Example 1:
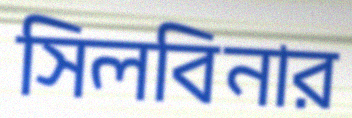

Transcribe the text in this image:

সিলবিনার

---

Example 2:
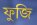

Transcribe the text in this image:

ফুজি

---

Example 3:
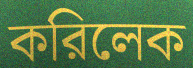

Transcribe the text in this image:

করিলেক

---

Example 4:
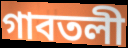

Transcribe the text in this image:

গাবতলী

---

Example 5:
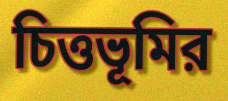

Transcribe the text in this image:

চিত্তভূমির